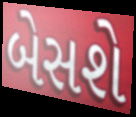
બેસશે